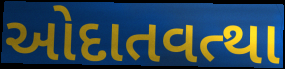
ઓદાતવત્થા